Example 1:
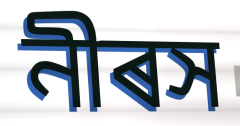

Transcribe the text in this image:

নীৰস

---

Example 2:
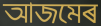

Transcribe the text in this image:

আজমেৰ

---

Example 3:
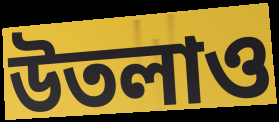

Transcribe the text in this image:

উতলাও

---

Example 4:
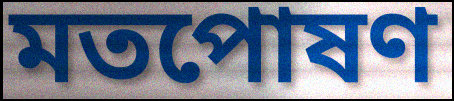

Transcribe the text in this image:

মতপোষণ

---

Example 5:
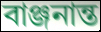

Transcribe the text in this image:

বাঞ্জনান্ত